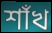
শাঁখ